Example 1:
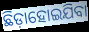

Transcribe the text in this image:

ଛିଡ଼ାହୋଇଯିବା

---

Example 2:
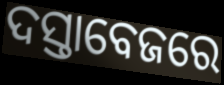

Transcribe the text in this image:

ଦସ୍ତାବେଜରେ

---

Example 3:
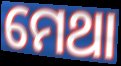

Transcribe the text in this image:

ମେଥା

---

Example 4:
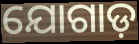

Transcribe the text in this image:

ଯୋଗାଡ଼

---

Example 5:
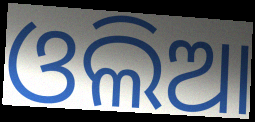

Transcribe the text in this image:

ଓଲିଆ